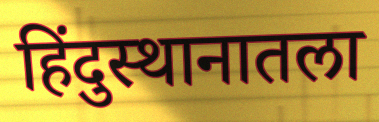
हिंदुस्थानातला